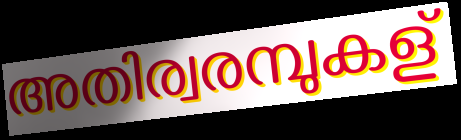
അതിര്വരമ്പുകള്